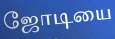
ஜோடியை